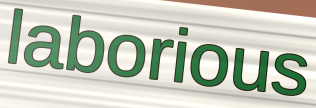
laborious